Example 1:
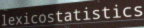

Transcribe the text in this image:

lexicostatistics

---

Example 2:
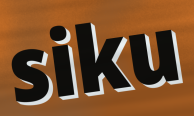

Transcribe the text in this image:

siku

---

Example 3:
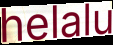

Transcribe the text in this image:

helalu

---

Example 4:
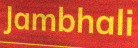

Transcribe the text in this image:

Jambhali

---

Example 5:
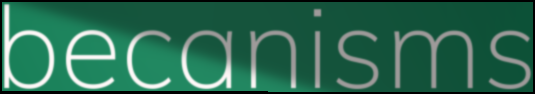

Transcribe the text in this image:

becanisms